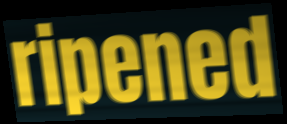
ripened